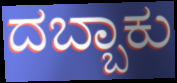
ದಬ್ಬಾಕು